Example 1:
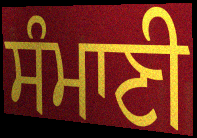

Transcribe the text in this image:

ਸੰਮਾਣੀ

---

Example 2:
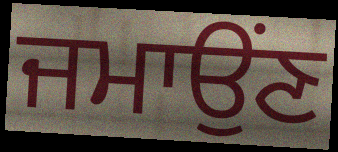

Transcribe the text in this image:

ਜਮਾਉਂਣ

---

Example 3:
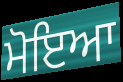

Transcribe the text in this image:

ਮੋਇਆ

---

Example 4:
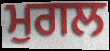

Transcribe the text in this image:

ਮੁਗਲ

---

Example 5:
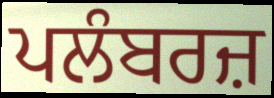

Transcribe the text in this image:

ਪਲੰਬਰਜ਼